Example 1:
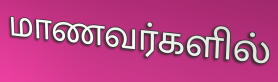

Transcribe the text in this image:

மாணவர்களில்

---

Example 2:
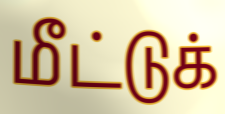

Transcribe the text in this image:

மீட்டுக்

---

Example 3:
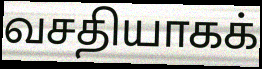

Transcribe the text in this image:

வசதியாகக்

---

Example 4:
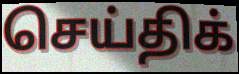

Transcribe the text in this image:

செய்திக்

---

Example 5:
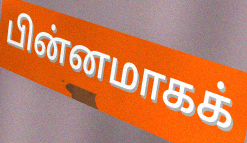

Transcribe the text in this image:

பின்னமாகக்